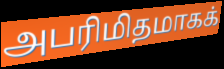
அபரிமிதமாகக்